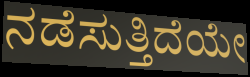
ನಡೆಸುತ್ತಿದೆಯೇ